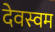
देवस्वम